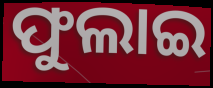
ଫୁଲାଇ